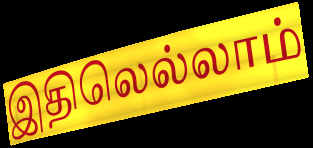
இதிலெல்லாம்